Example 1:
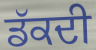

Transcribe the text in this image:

ਡੱਕਦੀ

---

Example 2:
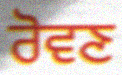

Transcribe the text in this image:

ਰੋਵਣ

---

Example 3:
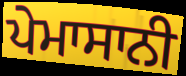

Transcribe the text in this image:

ਪੇਮਾਸਾਨੀ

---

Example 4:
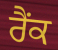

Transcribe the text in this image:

ਰੈੰਕ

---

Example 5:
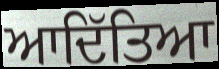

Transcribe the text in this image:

ਆਦਿੱਤਿਆ